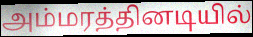
அம்மரத்தினடியில்